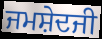
ਜਮਸ਼ੇਦਜੀ